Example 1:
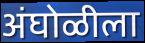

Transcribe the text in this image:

अंघोळीला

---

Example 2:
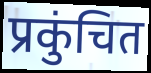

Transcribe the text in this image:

प्रकुंचित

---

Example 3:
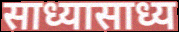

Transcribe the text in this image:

साध्यासाध्य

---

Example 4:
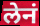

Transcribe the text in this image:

लेनं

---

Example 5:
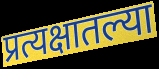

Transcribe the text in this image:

प्रत्यक्षातल्या